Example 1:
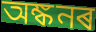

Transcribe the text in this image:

অঙ্কনৰ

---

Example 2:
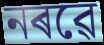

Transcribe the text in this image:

নৰৱে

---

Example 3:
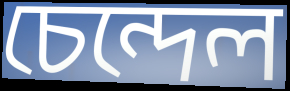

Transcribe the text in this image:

চেন্দেল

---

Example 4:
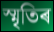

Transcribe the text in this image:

স্মৃতিৰ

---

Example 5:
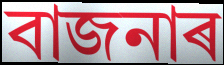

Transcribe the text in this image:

বাজনাৰ